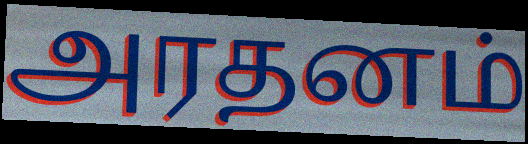
அரதனம்